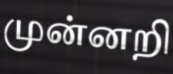
முன்னறி